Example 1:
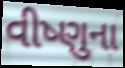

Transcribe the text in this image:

વીષ્ણુના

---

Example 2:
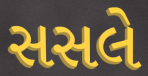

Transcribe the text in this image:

સસલે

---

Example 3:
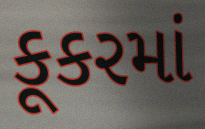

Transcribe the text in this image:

કૂકરમાં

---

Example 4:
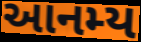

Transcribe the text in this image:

આનમ્ય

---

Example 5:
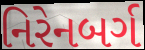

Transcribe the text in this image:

નિરેનબર્ગ